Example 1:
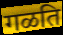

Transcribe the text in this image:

गळति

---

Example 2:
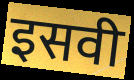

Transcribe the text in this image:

इसवी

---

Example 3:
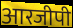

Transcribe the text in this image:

आरजीपी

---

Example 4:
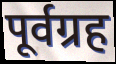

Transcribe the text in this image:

पूर्वग्रह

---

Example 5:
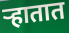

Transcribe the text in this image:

ऱ्हातात